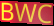
BWC